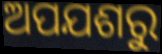
ଅପଯଶରୁ